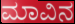
ಮಾವಿನ